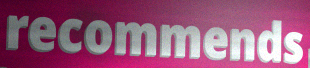
recommends